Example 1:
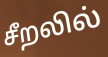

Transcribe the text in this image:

சீறலில்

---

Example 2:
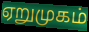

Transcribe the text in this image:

ஏறுமுகம்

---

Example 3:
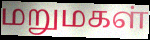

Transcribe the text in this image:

மறுமகள்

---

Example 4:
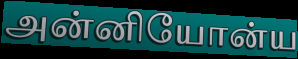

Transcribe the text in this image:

அன்னியோன்ய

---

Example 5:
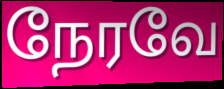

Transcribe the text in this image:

நேரவே